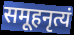
समूहनृत्यं